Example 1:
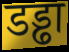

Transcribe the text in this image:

डड्ढा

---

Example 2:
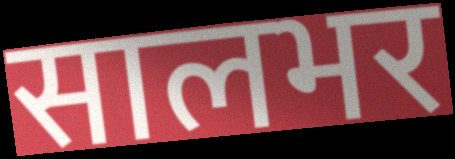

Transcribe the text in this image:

सालभर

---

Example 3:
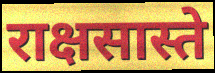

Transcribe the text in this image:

राक्षसास्ते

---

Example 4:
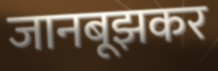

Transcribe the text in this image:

जानबूझकर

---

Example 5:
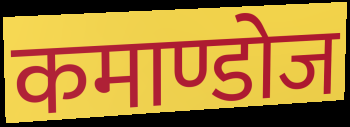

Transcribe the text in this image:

कमाण्डोज